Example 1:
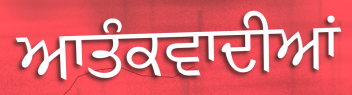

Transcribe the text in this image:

ਆਤੰਕਵਾਦੀਆਂ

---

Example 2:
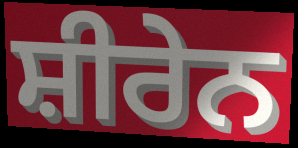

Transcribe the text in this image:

ਸ਼ੀਰੇਨ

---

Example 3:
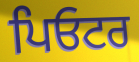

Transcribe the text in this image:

ਪਿਓਟਰ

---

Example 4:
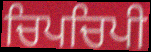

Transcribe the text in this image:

ਚਿਪਚਿਪੀ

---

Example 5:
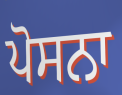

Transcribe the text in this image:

ਪੋਸਨਾ